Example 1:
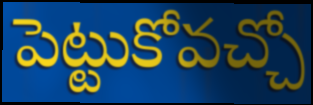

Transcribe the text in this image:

పెట్టుకోవచ్చో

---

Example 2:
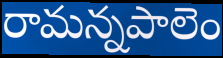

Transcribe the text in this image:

రామన్నపాలెం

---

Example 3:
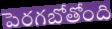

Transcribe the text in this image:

పెరగబోతోంది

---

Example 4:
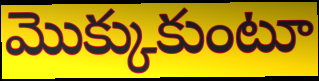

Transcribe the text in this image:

మొక్కుకుంటూ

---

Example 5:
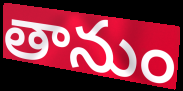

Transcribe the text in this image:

తానుం